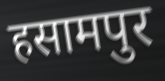
हसामपुर